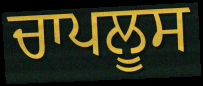
ਚਾਪਲੂਸ